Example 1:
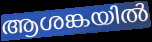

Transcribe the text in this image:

ആശങ്കയിൽ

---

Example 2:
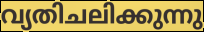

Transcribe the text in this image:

വ്യതിചലിക്കുന്നു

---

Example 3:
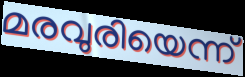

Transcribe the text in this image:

മരവുരിയെന്ന്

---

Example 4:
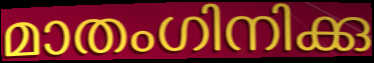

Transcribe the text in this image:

മാതംഗിനിക്കു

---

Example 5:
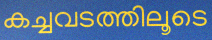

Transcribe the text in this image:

കച്ചവടത്തിലൂടെ